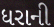
ધરાની